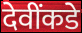
देवींकडे